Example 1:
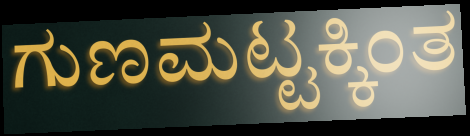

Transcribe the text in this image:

ಗುಣಮಟ್ಟಕ್ಕಿಂತ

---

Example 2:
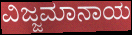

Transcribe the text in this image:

ವಿಜ್ಜಮಾನಾಯ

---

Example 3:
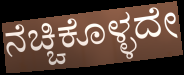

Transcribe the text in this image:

ನೆಚ್ಚಿಕೊಳ್ಳದೇ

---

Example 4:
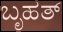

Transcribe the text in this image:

ಬೃಹತ್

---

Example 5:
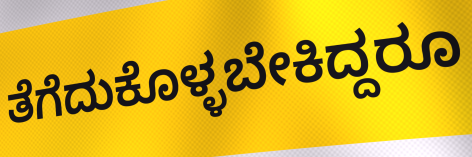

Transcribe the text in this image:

ತೆಗೆದುಕೊಳ್ಳಬೇಕಿದ್ದರೂ